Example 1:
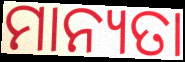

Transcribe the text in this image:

ମାନ୍ୟତା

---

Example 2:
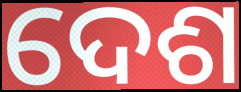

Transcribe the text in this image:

ଦେଶ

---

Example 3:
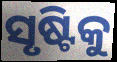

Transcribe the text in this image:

ସୃଷ୍ଟିକୁ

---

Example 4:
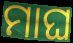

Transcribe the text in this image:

ମାଘ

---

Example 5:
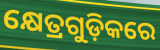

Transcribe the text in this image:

କ୍ଷେତ୍ରଗୁଡ଼ିକରେ